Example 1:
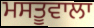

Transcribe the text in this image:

ਮਸਤੂਵਾਲਾ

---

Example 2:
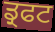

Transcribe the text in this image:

ਡ੍ਰਫਟ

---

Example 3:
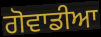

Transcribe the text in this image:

ਗੋਵਾਡੀਆ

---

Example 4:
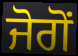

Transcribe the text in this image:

ਜੋਗੋਂ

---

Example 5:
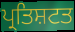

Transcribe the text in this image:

ਪ੍ਰਤਿਸ਼ਟਤ